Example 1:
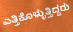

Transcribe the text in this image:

ಎತ್ತಿಕೊಳ್ಳುತ್ತಿದ್ದರು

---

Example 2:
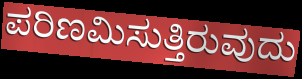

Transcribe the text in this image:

ಪರಿಣಮಿಸುತ್ತಿರುವುದು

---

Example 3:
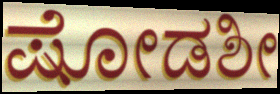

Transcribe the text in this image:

ಷೋಡಶೀ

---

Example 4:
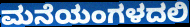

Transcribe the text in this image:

ಮನೆಯಂಗಳದಲಿ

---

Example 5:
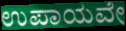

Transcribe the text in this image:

ಉಪಾಯವೇ